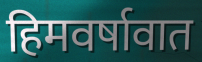
हिमवर्षावात